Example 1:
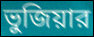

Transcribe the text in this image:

ভুজিয়ার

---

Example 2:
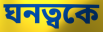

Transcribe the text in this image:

ঘনত্বকে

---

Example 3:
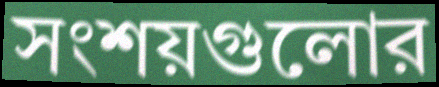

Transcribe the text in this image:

সংশয়গুলোর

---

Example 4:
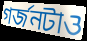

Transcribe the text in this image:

গর্জনটাও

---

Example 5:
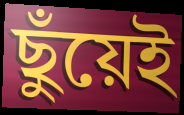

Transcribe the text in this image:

ছুঁয়েই